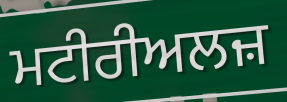
ਮਟੀਰੀਅਲਜ਼